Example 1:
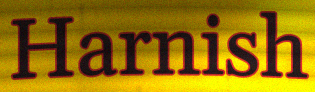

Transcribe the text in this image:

Harnish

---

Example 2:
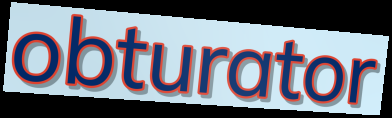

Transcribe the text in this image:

obturator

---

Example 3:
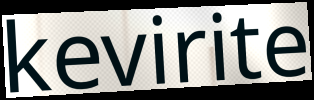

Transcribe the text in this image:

kevirite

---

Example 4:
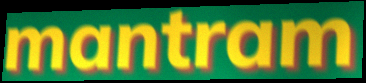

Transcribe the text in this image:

mantram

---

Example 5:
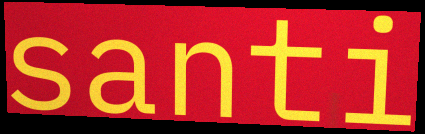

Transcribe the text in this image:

santi